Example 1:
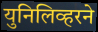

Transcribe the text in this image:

युनिलिव्हरने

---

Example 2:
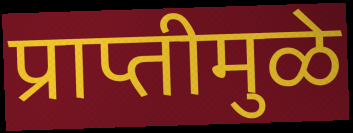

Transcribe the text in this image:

प्राप्तीमुळे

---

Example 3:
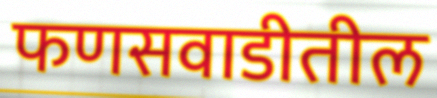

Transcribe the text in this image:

फणसवाडीतील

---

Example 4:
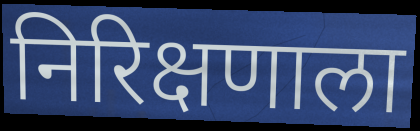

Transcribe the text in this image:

निरिक्षणाला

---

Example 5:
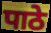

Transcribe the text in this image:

पाठे